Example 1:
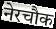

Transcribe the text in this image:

नेरचौक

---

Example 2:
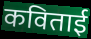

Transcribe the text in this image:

कविताई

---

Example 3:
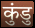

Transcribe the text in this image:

कुंडु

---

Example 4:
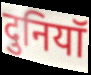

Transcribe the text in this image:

दुनियॉ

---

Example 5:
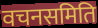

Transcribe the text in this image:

वचनसमिति